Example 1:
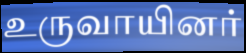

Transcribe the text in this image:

உருவாயினர்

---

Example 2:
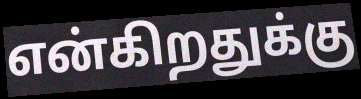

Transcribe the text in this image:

என்கிறதுக்கு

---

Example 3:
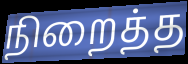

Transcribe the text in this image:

நிறைத்த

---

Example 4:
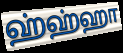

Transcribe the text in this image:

ஹ்ஹ்ஹா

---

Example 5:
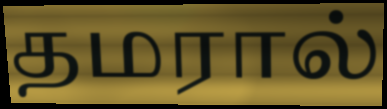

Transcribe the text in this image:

தமரால்